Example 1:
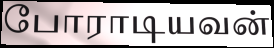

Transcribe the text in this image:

போராடியவன்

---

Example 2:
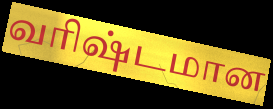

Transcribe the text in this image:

வரிஷ்டமான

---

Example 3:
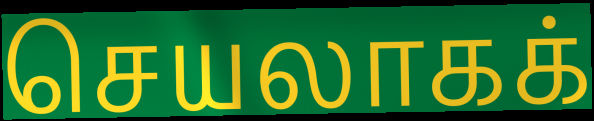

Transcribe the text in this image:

செயலாகக்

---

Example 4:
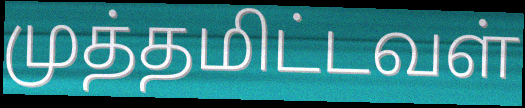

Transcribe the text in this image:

முத்தமிட்டவள்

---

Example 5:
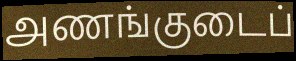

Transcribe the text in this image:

அணங்குடைப்